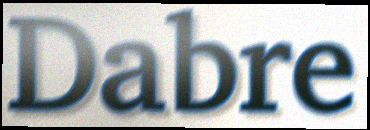
Dabre